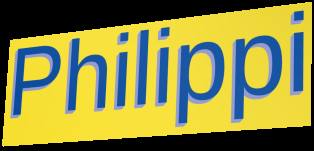
Philippi